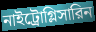
নাইট্রোগ্লিসারিন